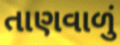
તાણવાળું